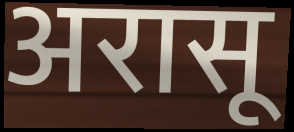
अरासू